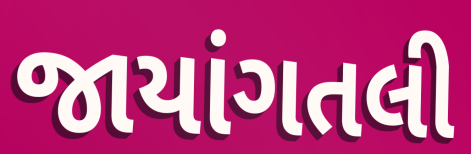
જાયાંગતલી